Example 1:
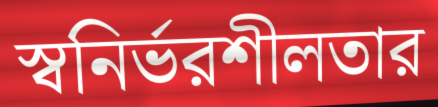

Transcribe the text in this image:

স্বনির্ভরশীলতার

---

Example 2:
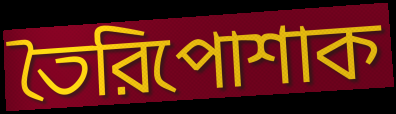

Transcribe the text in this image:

তৈরিপোশাক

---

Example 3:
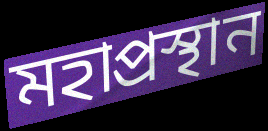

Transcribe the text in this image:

মহাপ্রস্থান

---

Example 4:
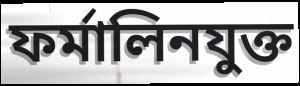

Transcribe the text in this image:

ফর্মালিনযুক্ত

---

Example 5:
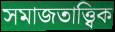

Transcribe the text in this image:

সমাজতাত্ত্বিক